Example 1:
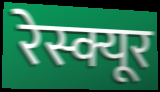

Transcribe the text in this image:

रेस्क्यूर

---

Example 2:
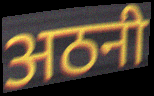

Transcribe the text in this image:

अठनी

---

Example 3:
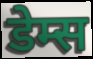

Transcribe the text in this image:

डेम्स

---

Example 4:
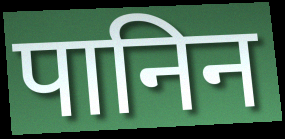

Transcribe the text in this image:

पानिन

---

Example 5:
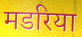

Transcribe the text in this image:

मडरिया